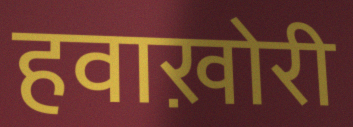
हवाख़ोरी